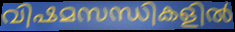
വിഷമസന്ധികളിൽ